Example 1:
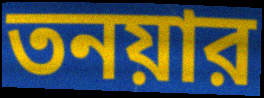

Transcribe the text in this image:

তনয়ার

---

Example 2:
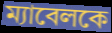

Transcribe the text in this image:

ম্যাবেলকে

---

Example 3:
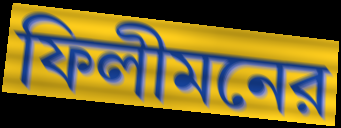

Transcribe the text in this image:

ফিলীমনের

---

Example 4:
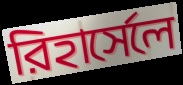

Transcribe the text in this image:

রিহার্সেলে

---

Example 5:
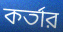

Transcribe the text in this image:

কর্তার